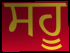
ਸਹੂ